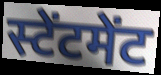
स्टेंटमेंट